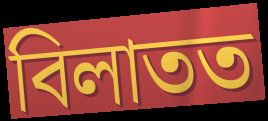
বিলাতত